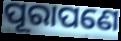
ପୂରାପଣେ